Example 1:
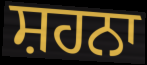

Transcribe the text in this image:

ਸ਼ਹਨਾ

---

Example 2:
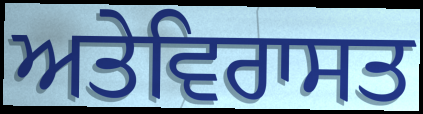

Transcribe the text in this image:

ਅਤੇਵਿਰਾਸਤ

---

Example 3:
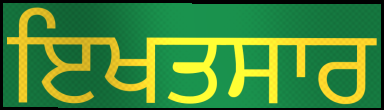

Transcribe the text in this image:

ਇਖਤਸਾਰ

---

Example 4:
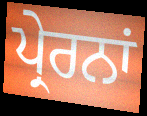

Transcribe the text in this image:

ਪ੍ਰੇਰਨਾਂ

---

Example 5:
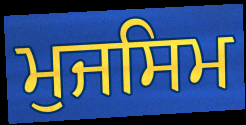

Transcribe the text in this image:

ਮੁਜਸਿਮ